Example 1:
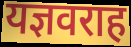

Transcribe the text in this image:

यज्ञवराह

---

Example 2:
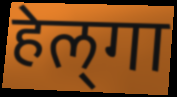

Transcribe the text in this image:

हेल्गा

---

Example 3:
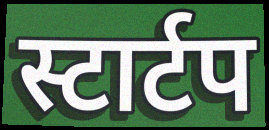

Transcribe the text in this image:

स्टार्टप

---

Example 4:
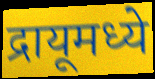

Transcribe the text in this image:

द्रायूमध्ये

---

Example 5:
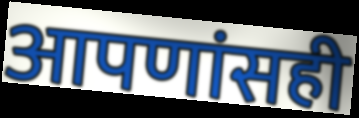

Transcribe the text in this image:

आपणांसही